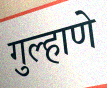
गुल्हाणे